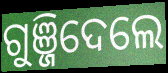
ଗୁଞ୍ଜିଦେଲେ